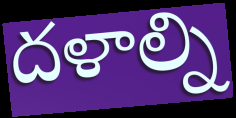
దళాల్ని